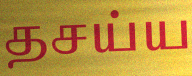
தசய்ய